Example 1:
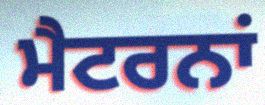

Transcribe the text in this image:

ਮੈਟਰਨਾਂ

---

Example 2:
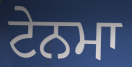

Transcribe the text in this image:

ਟੇਨਮਾ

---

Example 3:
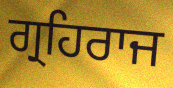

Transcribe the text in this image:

ਗ੍ਰਹਿਰਾਜ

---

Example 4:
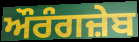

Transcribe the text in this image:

ਔਰੰਗਜ਼ੇਬ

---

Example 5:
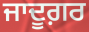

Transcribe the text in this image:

ਜਾਦੂਗ਼ਰ